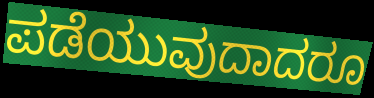
ಪಡೆಯುವುದಾದರೂ